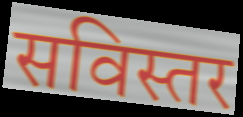
सविस्तर